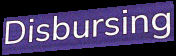
Disbursing